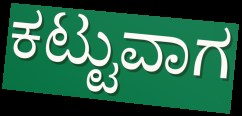
ಕಟ್ಟುವಾಗ